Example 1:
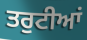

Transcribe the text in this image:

ਤਰੁਟੀਆਂ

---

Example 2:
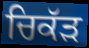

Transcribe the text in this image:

ਚਿਕੱੜ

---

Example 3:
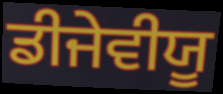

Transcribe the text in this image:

ਡੀਜੇਵੀਯੂ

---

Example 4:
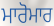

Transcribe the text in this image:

ਮਾਰੋਮਾਰ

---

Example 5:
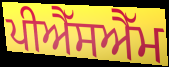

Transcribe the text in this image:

ਪੀਐੱਸਐੱਮ